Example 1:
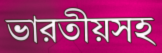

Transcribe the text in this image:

ভারতীয়সহ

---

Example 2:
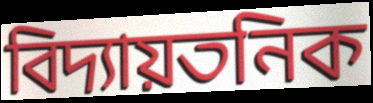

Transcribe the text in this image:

বিদ্যায়তনিক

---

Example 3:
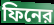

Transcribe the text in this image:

ফিনের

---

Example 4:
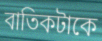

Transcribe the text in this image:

বাতিকটাকে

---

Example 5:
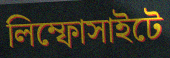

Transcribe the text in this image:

লিম্ফোসাইটে